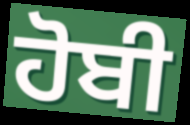
ਹੋਬੀ